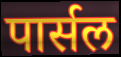
पार्सल